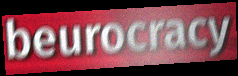
beurocracy